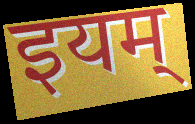
इयम्